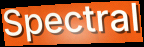
Spectral